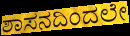
ಶಾಸನದಿಂದಲೇ